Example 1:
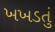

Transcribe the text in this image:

ખખડતું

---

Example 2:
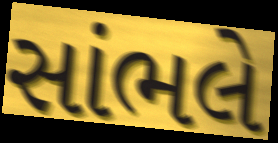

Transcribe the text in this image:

સાંભલે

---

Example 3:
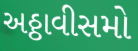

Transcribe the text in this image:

અઠ્ઠાવીસમો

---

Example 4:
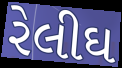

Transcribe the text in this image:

રેલીઘ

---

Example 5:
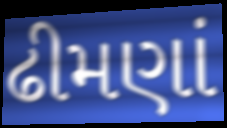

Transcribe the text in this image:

ઢીમણાં